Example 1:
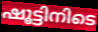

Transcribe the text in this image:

ഷൂട്ടിനിടെ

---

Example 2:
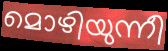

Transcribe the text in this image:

മൊഴിയുന്നീ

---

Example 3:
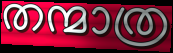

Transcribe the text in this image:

തന്മാത്ര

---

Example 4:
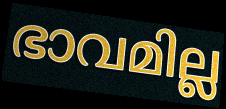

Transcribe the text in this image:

ഭാവമില്ല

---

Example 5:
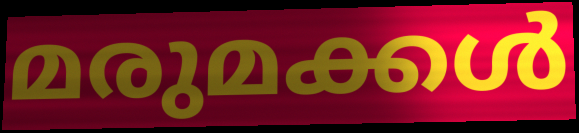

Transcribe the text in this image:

മരുമക്കൾ